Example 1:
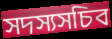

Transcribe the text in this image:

সদস্যসচিব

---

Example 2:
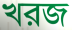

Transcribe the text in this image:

খরজ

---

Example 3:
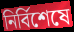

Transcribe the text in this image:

নির্বিশেষে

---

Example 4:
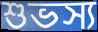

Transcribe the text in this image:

শুভস্য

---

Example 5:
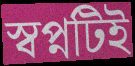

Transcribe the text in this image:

স্বপ্নটিই